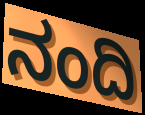
ನಂದಿ